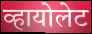
व्हायोलेट